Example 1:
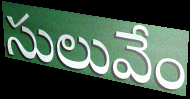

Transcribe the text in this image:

సులువేం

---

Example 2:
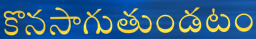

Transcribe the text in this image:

కొనసాగుతుండటం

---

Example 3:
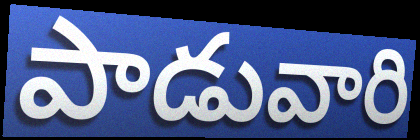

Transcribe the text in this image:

పాడువారి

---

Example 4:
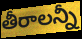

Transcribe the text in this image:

తీరాలన్నీ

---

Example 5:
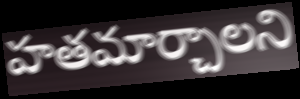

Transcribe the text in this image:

హతమార్చాలని